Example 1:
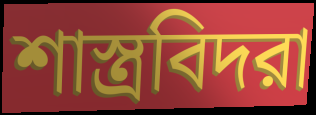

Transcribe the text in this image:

শাস্ত্রবিদরা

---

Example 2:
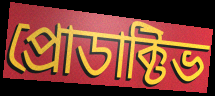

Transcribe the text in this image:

প্রোডাক্টিভ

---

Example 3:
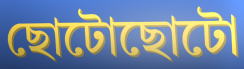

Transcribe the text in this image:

ছোটোছোটো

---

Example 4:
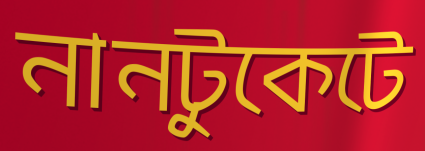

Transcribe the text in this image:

নানটুকেটে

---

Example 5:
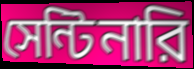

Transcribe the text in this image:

সেন্টিনারি